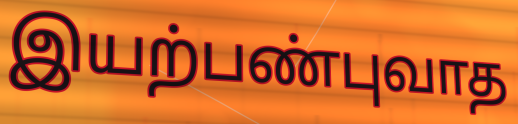
இயற்பண்புவாத